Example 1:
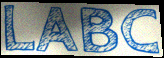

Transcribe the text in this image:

LABC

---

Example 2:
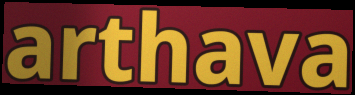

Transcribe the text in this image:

arthava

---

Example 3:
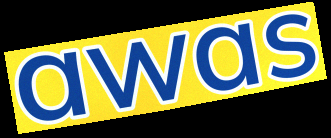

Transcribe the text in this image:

awas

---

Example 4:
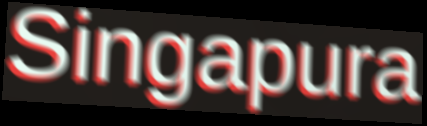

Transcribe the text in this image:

Singapura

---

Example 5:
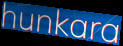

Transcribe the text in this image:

hunkara